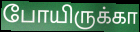
போயிருக்கா